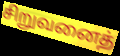
சிறுவனைத்